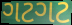
ગટગટ